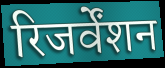
रिजर्वेंशन